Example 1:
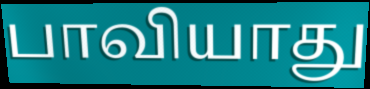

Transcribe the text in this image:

பாவியாது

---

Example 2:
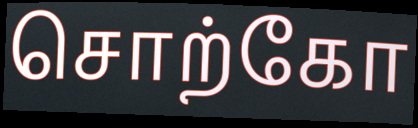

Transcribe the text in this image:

சொற்கோ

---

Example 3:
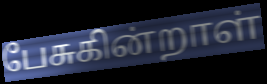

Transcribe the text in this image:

பேசுகின்றாள்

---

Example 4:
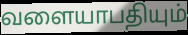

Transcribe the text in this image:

வளையாபதியும்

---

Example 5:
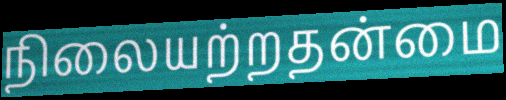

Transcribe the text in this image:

நிலையற்றதன்மை